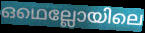
ഒഥെല്ലോയിലെ